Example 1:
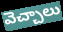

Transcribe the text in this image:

వెచ్చాలు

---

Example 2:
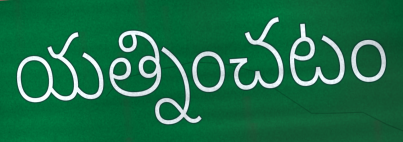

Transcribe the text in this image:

యత్నించటం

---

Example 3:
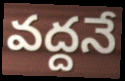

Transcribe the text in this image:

వద్దనే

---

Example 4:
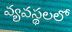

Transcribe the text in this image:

వ్యవస్థలలో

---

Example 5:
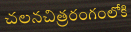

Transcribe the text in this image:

చలనచిత్రరంగంలోకి